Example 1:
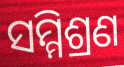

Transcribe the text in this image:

ସମ୍ମିଶ୍ରଣ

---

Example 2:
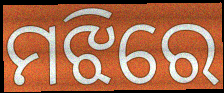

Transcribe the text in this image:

ମଝିରେ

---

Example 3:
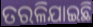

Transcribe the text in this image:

ତରଳିଯାଇଛି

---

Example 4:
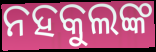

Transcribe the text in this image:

ନହକୁଲଙ୍କ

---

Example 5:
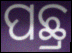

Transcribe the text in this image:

ପଛ୍ର